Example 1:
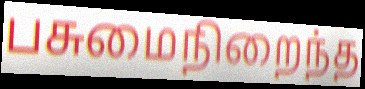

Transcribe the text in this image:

பசுமைநிறைந்த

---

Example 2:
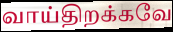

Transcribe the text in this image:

வாய்திறக்கவே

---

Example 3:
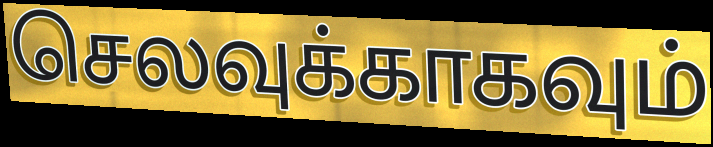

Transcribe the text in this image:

செலவுக்காகவும்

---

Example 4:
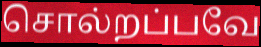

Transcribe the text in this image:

சொல்றப்பவே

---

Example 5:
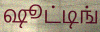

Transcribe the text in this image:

ஷூட்டிங்